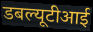
डबल्यूटीआई